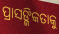
ପ୍ରାସଙ୍ଗିକତାକୁ